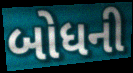
બોધની